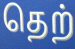
தெற்